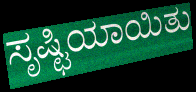
ಸೃಷ್ಟಿಯಾಯಿತು